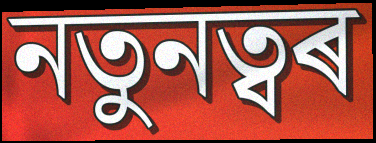
নতুনত্বৰ